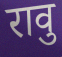
रावु